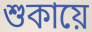
শুকায়ে